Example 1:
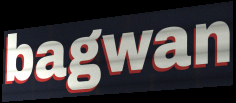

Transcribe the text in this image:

bagwan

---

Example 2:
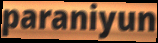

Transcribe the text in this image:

paraniyun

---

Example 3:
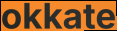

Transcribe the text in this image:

okkate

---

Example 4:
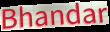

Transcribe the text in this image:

Bhandar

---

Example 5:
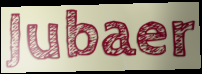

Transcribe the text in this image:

Jubaer